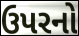
ઉપરનો